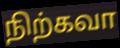
நிற்கவா